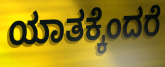
ಯಾತಕ್ಕೆಂದರೆ